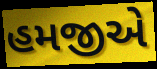
હમજીએ